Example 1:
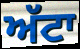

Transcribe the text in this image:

ਅੱਟਾ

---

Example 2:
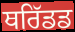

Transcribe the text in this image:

ਥਰਿੱਡਡ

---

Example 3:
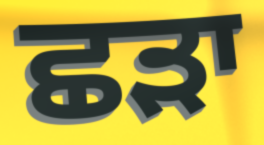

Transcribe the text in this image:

ਛਡ਼ਾ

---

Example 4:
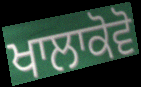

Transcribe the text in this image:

ਖਾਲਾਕੋਵੋ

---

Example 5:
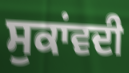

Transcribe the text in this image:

ਸੁਕਾਂਵਦੀ